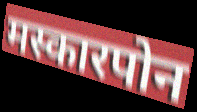
मस्कारपोन